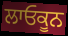
ਲਾਓਕੂਨ